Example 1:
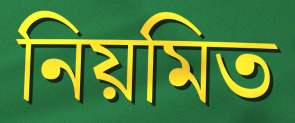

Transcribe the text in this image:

নিয়মিত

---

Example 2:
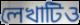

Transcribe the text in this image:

লেখাটিও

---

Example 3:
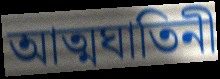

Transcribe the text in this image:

আত্মঘাতিনী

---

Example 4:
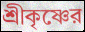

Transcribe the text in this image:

শ্রীকৃষ্ণের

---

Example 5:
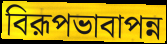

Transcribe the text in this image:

বিরূপভাবাপন্ন